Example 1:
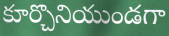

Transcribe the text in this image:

కూర్చొనియుండగా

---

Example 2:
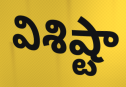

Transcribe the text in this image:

విశిష్టా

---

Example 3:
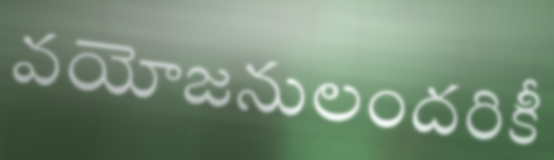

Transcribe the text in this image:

వయోజనులందరికీ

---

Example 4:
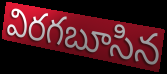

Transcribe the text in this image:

విరగబూసిన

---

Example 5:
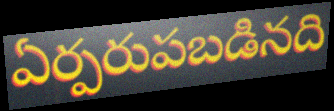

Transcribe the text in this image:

ఏర్పరుపబడినది